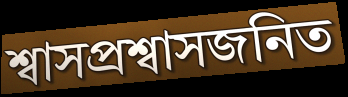
শ্বাসপ্রশ্বাসজনিত